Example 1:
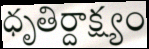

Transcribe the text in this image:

ధృతిర్దాక్ష్యం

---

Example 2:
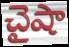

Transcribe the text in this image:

చైషా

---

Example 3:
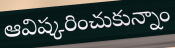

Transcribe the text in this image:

ఆవిష్కరించుకున్నాం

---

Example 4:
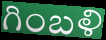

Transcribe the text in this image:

గింబళి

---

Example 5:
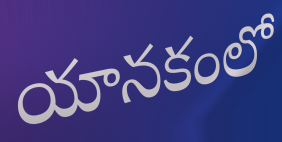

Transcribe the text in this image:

యానకంలో